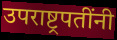
उपराष्ट्रपतींनी